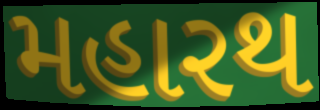
મહારથ